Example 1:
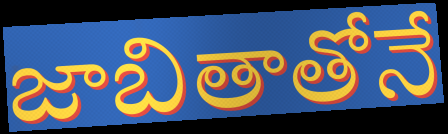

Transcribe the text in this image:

జాబితాతోనే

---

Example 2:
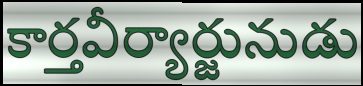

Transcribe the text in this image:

కార్తవీర్యార్జునుడు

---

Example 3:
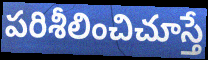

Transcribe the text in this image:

పరిశీలించిచూస్తే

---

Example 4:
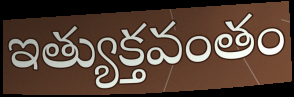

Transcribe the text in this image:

ఇత్యుక్తవంతం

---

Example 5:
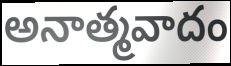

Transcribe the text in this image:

అనాత్మవాదం